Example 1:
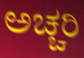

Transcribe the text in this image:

ಅಚ್ಚರಿ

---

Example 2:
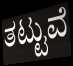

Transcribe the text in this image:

ತಟ್ಟುವೆ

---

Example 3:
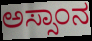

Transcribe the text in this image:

ಅಸ್ಸಾಂನ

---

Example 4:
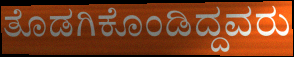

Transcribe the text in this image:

ತೊಡಗಿಕೊಂಡಿದ್ದವರು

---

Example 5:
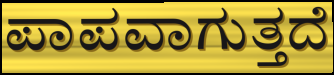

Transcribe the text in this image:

ಪಾಪವಾಗುತ್ತದೆ